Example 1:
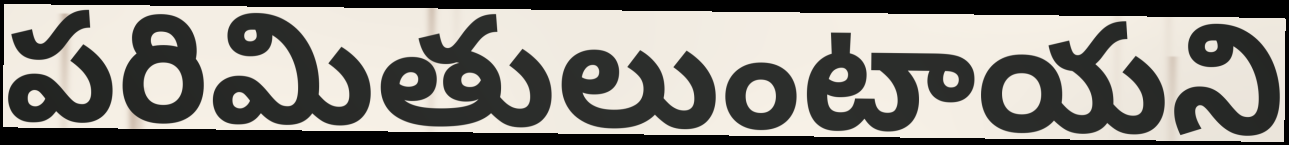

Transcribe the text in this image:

పరిమితులుంటాయని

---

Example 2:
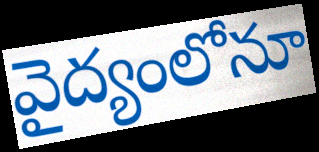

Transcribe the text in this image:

వైద్యంలోనూ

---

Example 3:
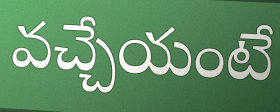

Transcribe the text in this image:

వచ్చేయంటే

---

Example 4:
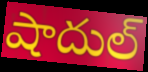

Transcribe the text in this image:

షాదుల్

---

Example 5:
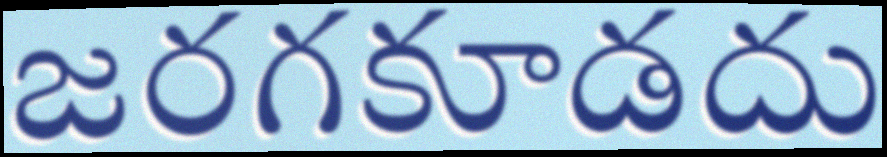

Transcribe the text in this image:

జరగకూడదు